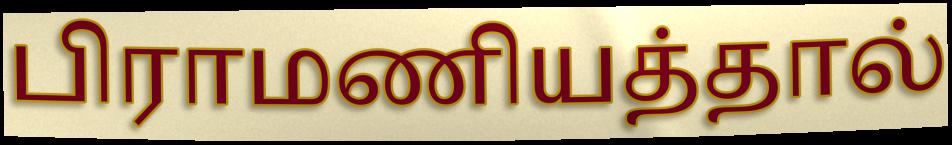
பிராமணியத்தால்